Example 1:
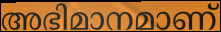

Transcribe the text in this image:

അഭിമാനമാണ്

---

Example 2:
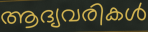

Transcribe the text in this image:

ആദ്യവരികൾ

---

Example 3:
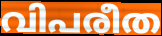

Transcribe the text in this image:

വിപരീത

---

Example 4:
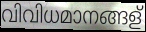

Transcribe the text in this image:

വിവിധമാനങ്ങള്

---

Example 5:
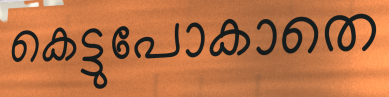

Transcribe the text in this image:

കെട്ടുപോകാതെ